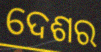
ଦେଶର